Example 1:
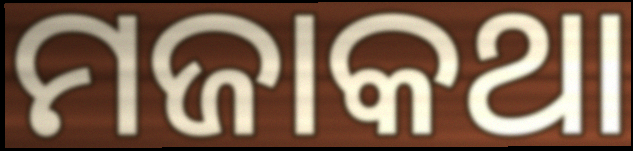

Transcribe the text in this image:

ମଜାକଥା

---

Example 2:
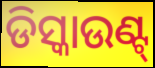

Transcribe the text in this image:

ଡିସ୍କାଉଣ୍ଟ୍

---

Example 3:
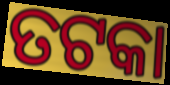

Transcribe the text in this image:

ତଟକା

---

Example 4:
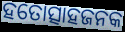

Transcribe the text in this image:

ହତୋତ୍ସାହଜନକ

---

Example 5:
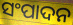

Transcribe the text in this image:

ସଂପାଦନ